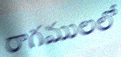
రాగములలో